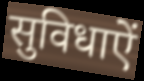
सुविधाऐं